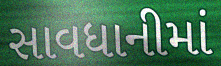
સાવધાનીમાં